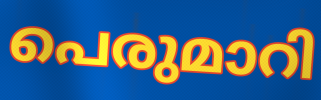
പെരുമാറി